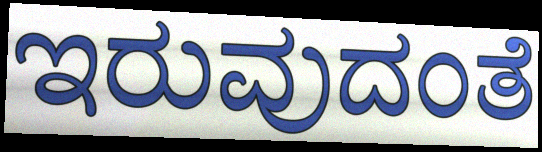
ಇರುವುದಂತೆ